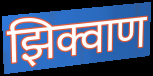
झिक्वाण